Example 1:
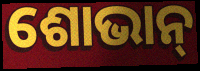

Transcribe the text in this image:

ଶୋଭାନ୍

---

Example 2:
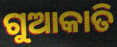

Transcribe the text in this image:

ଗୁଆକାତି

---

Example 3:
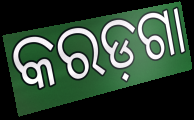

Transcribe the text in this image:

କରଡ଼ଗା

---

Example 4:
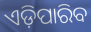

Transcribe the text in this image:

ଏଡ଼ିପାରିବ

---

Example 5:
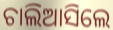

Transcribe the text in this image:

ଚାଲିଆସିଲେ